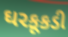
ઘરકૂકડી